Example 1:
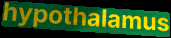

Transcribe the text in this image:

hypothalamus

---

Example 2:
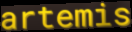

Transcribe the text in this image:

artemis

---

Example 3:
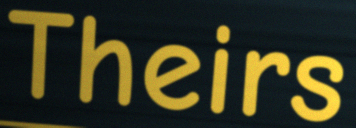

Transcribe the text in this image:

Theirs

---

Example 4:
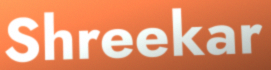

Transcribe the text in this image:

Shreekar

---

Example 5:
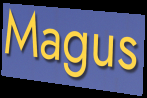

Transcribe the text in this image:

Magus